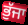
ਭੁੱਜਾ